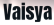
Vaisya